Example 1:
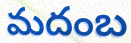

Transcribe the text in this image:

మదంబ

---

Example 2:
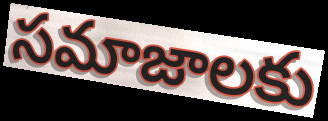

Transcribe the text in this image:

సమాజాలకు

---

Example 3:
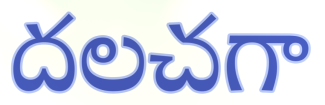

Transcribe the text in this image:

దలచగా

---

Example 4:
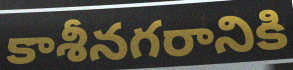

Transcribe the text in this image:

కాశీనగరానికి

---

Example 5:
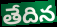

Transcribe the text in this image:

తేదిన